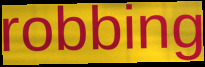
robbing